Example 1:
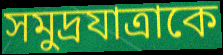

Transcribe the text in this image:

সমুদ্রযাত্রাকে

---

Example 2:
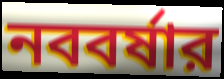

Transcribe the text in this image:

নববর্ষার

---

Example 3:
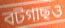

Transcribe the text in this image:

বটগাছও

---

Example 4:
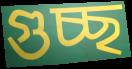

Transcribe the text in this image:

গুচ্ছ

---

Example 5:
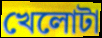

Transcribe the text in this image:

খেলোটা